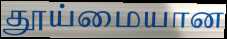
தூய்மையான